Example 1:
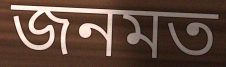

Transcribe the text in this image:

জনমত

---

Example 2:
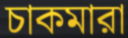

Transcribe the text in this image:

চাকমারা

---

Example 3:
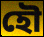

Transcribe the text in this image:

হৌ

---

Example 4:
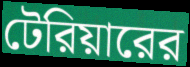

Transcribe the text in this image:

টেরিয়ারের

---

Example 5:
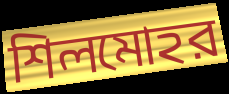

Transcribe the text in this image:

শিলমোহর